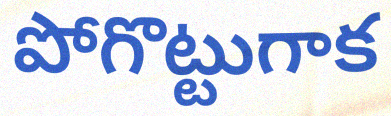
పోగొట్టుగాక